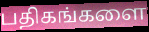
பதிகங்களை